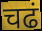
चढं